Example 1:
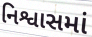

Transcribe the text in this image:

નિશ્વાસમાં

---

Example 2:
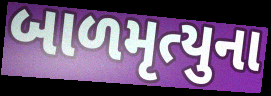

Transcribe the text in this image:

બાળમૃત્યુના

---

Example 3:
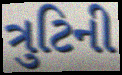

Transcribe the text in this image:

ત્રુટિની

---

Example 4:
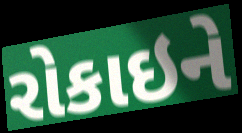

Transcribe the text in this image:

રોકાઇને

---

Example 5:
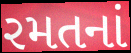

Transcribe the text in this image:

રમતનાં